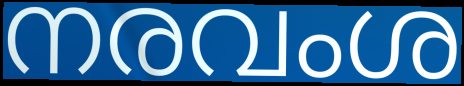
നരവംശ